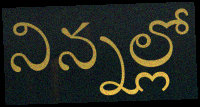
నిన్నల్లో